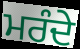
ਮਰੰਦੇ